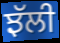
ਝੱਲੀ